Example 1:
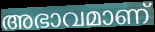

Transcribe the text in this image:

അഭാവമാണ്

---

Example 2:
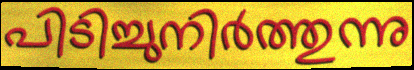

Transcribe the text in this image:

പിടിച്ചുനിർത്തുന്നു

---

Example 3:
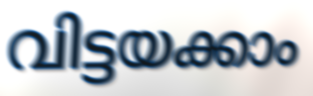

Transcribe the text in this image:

വിട്ടയക്കാം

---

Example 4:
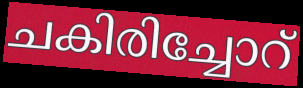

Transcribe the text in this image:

ചകിരിച്ചോറ്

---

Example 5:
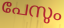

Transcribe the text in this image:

പേസും